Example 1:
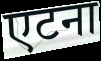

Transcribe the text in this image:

एटना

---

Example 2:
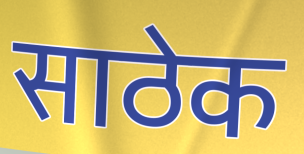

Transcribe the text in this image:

साठेक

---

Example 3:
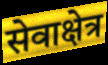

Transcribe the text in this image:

सेवाक्षेत्र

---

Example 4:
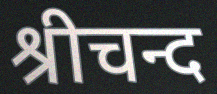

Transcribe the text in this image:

श्रीचन्द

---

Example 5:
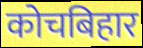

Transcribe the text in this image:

कोचबिहार